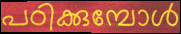
പഠിക്കുമ്പോൾ